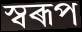
স্বৰূপ